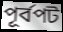
পূর্বপট